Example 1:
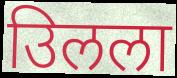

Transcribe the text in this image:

उिलला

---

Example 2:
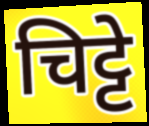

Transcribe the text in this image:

चिट्टे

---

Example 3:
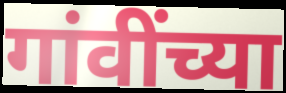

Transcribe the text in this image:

गांवींच्या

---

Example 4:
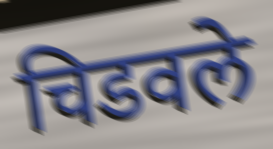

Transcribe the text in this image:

चिडवले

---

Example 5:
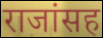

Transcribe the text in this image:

राजांसह